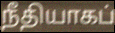
நீதியாகப்